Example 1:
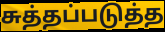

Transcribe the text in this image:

சுத்தப்படுத்த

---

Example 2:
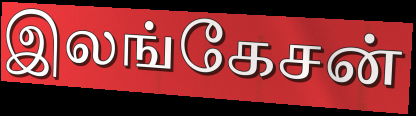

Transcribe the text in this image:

இலங்கேசன்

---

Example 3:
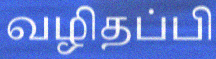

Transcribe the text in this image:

வழிதப்பி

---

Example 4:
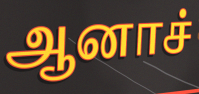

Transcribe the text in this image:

ஆனாச்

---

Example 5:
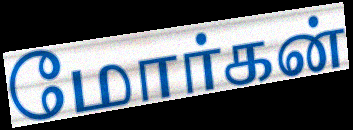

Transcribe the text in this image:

மோர்கன்